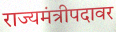
राज्यमंत्रीपदावर